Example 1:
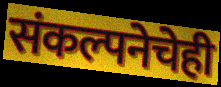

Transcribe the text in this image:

संकल्पनेचेही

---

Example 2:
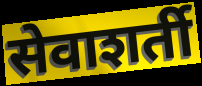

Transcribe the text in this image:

सेवाशर्ती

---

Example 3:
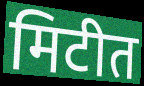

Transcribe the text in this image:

मिटीत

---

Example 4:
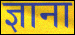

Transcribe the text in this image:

ज्ञाना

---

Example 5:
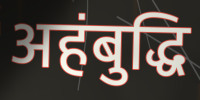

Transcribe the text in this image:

अहंबुद्धि